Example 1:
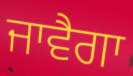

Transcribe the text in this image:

ਜਾਵੈਗਾ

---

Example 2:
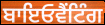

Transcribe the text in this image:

ਬਾਇਓਵੈਂਟਿੰਗ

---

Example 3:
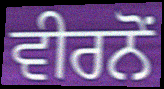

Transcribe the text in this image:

ਵੀਰਨੋਂ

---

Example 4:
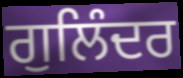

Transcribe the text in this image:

ਗੁਲਿੰਦਰ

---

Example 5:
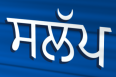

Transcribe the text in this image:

ਸਲੱਪ